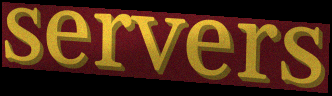
servers